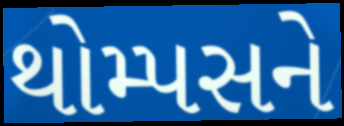
થોમ્પસને